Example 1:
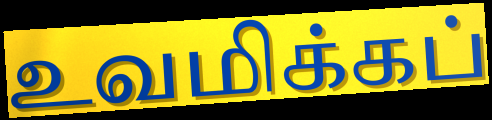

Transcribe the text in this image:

உவமிக்கப்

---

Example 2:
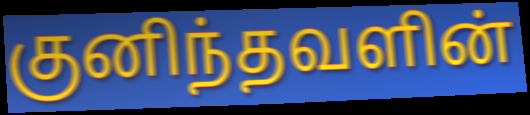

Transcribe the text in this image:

குனிந்தவளின்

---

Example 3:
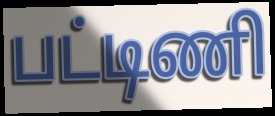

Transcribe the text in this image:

பட்டிணி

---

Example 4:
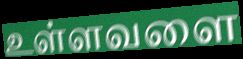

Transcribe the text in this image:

உள்ளவளை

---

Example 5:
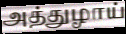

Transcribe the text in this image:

அத்துழாய்